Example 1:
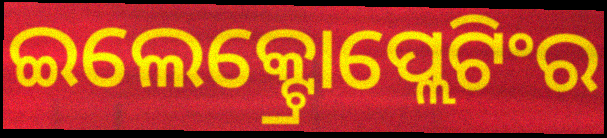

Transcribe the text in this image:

ଇଲେକ୍ଟ୍ରୋପ୍ଲେଟିଂର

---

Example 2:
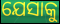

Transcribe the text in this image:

ଯେସାକୁ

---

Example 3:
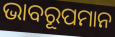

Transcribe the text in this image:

ଭାବରୂପମାନ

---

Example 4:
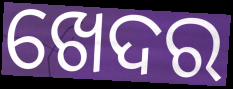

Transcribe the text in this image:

ଖେଦର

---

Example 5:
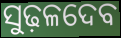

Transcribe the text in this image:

ସୁଢ଼ଳଦେବ